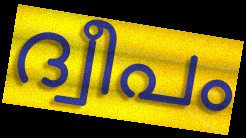
ദ്വീപം